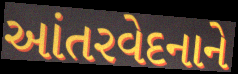
આંતરવેદનાને